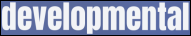
developmental